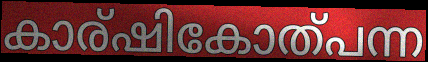
കാര്ഷികോത്പന്ന